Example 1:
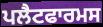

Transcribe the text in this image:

ਪਲੈਟਫਾਰਮਸ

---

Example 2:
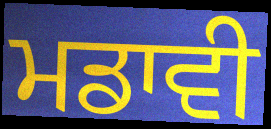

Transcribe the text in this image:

ਮਡਾਵੀ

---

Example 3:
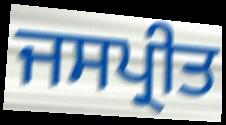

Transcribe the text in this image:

ਜਸਪ੍ਰੀਤ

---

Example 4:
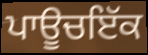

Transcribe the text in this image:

ਪਾਊਚਇੱਕ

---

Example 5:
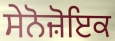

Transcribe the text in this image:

ਸੇਨੋਜ਼ੋਇਕ